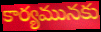
కార్యమునకు